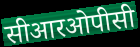
सीआरओपीसी